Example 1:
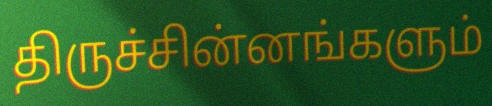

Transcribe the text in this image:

திருச்சின்னங்களும்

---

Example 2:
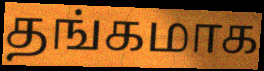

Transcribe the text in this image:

தங்கமாக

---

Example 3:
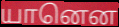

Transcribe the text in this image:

யானென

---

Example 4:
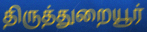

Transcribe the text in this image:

திருத்துறையூர்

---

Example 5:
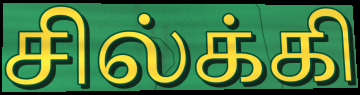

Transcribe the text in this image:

சில்க்கி